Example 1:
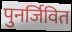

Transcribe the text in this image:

पुनर्जिवित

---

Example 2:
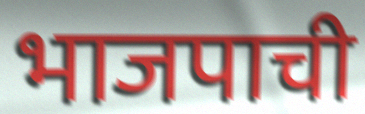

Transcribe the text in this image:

भाजपाची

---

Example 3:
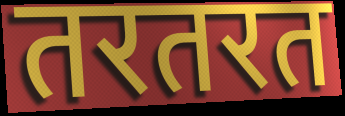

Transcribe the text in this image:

तरतरत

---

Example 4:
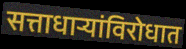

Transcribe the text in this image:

सत्ताधाऱ्यांविरोधात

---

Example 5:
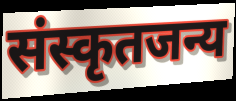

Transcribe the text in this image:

संस्कृतजन्य